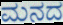
ಮನದ